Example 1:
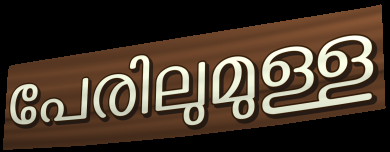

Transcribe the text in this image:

പേരിലുമുള്ള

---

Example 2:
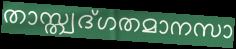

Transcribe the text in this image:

താസ്ത്വദ്ഗതമാനസാ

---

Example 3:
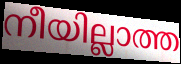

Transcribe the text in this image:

നീയില്ലാത്ത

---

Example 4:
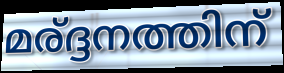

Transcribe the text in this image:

മര്ദ്ദനത്തിന്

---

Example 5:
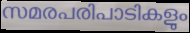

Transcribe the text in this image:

സമരപരിപാടികളും